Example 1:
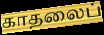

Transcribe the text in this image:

காதலைப்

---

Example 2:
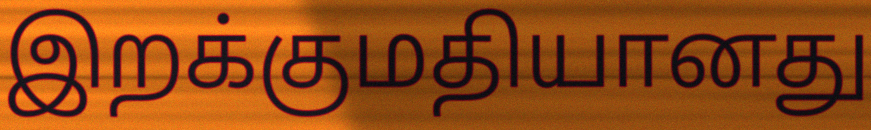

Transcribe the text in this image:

இறக்குமதியானது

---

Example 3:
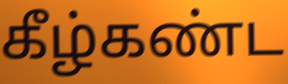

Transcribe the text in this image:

கீழ்கண்ட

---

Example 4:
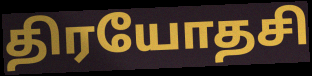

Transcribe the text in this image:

திரயோதசி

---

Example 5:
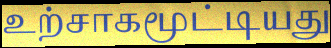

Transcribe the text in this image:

உற்சாகமூட்டியது